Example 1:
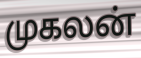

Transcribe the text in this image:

முகலன்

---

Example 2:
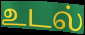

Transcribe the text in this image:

உடல்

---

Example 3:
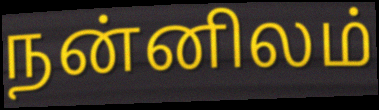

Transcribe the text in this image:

நன்னிலம்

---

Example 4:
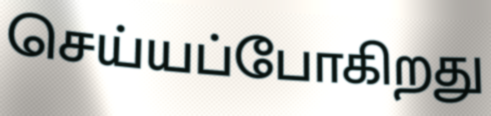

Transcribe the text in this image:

செய்யப்போகிறது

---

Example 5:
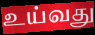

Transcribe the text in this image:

உய்வது